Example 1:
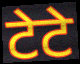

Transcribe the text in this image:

टेटे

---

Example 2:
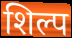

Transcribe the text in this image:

शिल्प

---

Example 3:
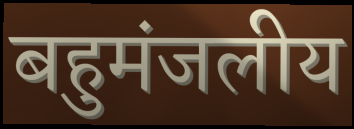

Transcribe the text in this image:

बहुमंजलीय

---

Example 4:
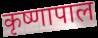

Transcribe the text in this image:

कृष्णापाल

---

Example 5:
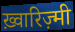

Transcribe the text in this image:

ख़्वारिज़्मी